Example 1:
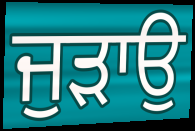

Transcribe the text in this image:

ਜੁੜਾਉ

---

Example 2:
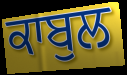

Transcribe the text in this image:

ਕਾਬੁਲ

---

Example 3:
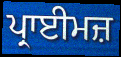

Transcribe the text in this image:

ਪ੍ਰਾਈਮਜ਼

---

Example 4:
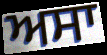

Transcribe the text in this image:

ਅਸਾ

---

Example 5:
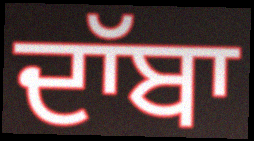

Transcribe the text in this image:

ਦਾੱਬਾ